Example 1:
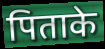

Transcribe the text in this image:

पिताके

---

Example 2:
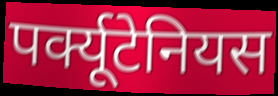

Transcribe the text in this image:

पर्क्यूटेनियस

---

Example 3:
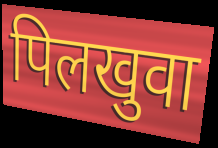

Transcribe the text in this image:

पिलखुवा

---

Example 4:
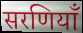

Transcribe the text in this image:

सरणियाँ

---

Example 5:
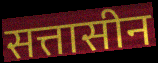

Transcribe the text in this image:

सत्तासीन